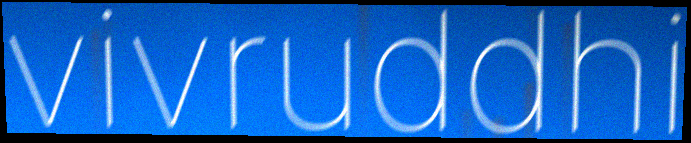
vivruddhi